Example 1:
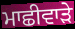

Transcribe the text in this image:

ਮਾਛੀਵਾੜੇ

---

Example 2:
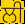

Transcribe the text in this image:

ਲੀ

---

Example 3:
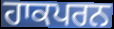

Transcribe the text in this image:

ਹਾਕਪਰਨ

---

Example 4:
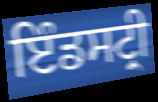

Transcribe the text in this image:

ਇੰਡਸਟ੍ਰੀ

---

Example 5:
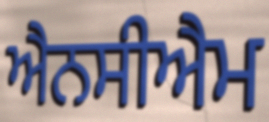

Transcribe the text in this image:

ਐਨਸੀਐਮ